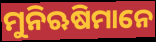
ମୁନିଋଷିମାନେ